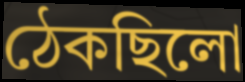
ঠেকছিলো